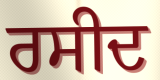
ਰਸੀਦ